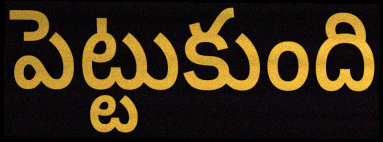
పెట్టుకుంది